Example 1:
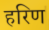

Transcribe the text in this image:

हरिण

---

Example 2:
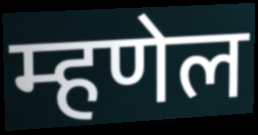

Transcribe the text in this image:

म्हणेल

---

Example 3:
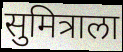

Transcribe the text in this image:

सुमित्राला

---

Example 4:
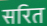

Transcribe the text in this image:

सरित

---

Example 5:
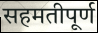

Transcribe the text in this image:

सहमतीपूर्ण